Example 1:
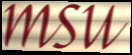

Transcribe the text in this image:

msu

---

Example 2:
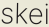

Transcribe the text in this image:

skei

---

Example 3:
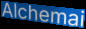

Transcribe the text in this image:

Alchemai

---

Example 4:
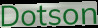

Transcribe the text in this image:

Dotson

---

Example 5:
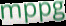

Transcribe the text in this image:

mppg